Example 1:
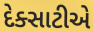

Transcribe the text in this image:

દેક્સાટીએ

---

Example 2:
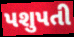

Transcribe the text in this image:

પશુપતી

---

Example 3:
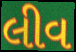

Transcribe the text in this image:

લીવ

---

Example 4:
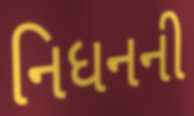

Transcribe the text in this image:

નિધનની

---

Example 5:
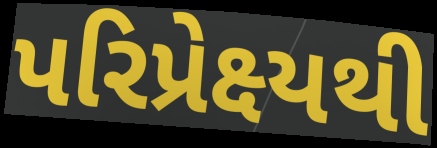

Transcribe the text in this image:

પરિપ્રેક્ષ્યથી